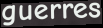
guerres